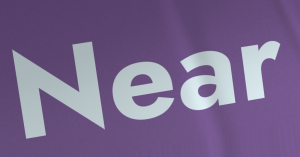
Near